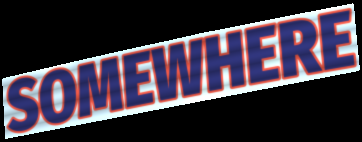
SOMEWHERE